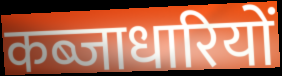
कब्जाधारियों